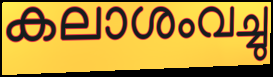
കലാശംവച്ചു